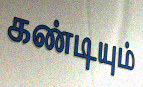
கண்டியும்